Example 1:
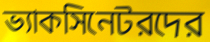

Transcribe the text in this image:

ভ্যাকসিনেটরদের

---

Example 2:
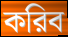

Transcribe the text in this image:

করিব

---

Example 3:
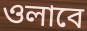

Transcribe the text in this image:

ওলাবে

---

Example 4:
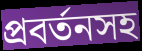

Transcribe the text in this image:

প্রবর্তনসহ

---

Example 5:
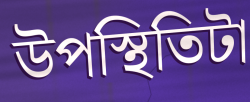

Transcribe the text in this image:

উপস্থিতিটা